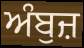
ਅੰਬੁਜ਼